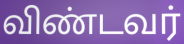
விண்டவர்